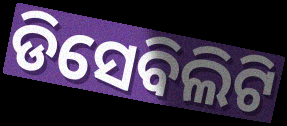
ଡିସେବିଲିଟି